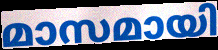
മാസമായി